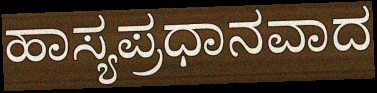
ಹಾಸ್ಯಪ್ರಧಾನವಾದ